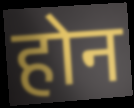
होन